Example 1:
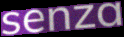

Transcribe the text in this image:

senza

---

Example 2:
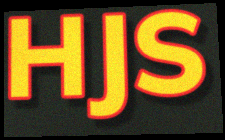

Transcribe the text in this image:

HJS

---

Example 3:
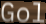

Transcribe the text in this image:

Gol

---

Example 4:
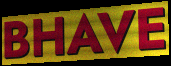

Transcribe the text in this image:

BHAVE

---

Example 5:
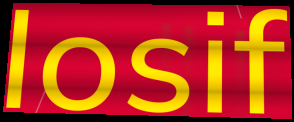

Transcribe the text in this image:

Iosif